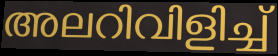
അലറിവിളിച്ച്